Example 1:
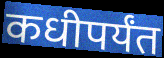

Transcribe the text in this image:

कधीपर्यंत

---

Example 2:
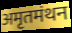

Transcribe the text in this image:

अमृतमंथन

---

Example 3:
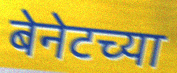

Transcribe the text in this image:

बेनेटच्या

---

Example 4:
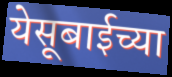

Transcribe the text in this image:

येसूबाईच्या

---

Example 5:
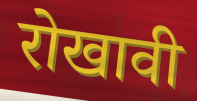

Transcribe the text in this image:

रोखावी